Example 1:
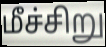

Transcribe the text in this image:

மீச்சிறு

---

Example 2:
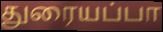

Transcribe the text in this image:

துரையப்பா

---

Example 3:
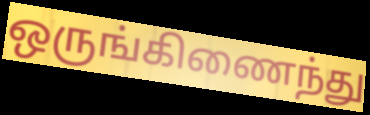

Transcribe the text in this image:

ஒருங்கிணைந்து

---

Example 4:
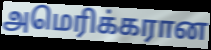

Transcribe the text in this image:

அமெரிக்கரான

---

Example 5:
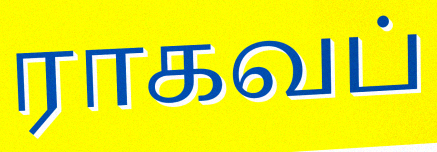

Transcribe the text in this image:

ராகவப்